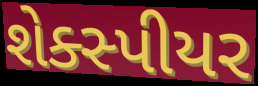
શેક્સ્પીયર